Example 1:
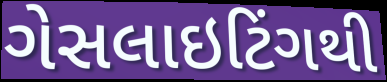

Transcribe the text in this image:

ગેસલાઇટિંગથી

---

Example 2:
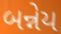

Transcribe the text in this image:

બન્નેય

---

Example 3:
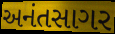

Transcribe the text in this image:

અનંતસાગર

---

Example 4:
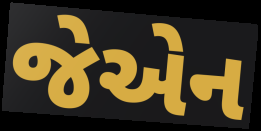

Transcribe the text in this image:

જેએન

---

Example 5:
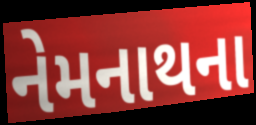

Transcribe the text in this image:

નેમનાથના